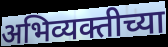
अभिव्यक्तीच्या